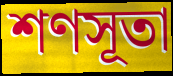
শণসূতা